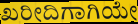
ಖರೀದಿಗಾಗಿಯೇ